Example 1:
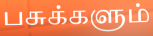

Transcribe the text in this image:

பசுக்களும்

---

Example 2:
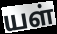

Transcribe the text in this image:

யள்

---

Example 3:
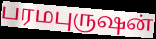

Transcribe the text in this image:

பரமபுருஷன்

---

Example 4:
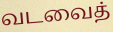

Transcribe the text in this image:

வடவைத்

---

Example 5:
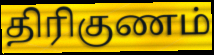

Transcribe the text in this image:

திரிகுணம்